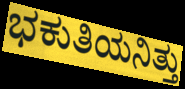
ಭಕುತಿಯನಿತ್ತು